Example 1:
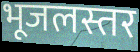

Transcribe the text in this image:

भूजलस्तर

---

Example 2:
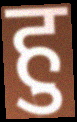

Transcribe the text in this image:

हु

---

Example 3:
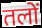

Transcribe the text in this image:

तलों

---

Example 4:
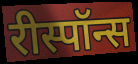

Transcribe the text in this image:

रीस्पॉन्स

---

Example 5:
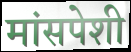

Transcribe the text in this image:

मांसपेशी